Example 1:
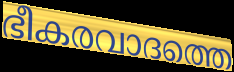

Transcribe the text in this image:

ഭീകരവാദത്തെ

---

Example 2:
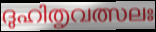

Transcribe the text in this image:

ദുഹിതൃവത്സലഃ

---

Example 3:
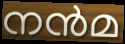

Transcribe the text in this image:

നൻമ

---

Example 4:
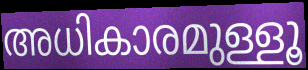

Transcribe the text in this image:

അധികാരമുള്ളൂ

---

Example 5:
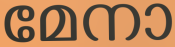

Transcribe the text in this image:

മേനാ